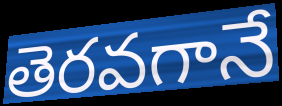
తెరవగానే